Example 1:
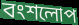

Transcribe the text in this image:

বংশলোপ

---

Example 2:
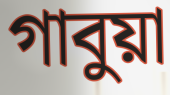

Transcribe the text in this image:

গাবুয়া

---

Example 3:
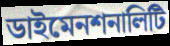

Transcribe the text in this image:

ডাইমেনশনালিটি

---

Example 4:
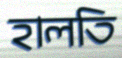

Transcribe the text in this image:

হালতি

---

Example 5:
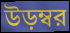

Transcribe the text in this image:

উড়ম্বর